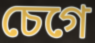
চেগে